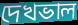
দেখভাল